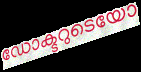
ഡോക്ടറുടെയോ